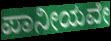
ಪಾನೀಯವೇ